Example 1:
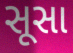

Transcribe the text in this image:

સૂસા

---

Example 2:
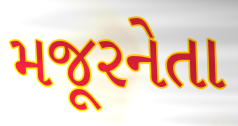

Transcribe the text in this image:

મજૂરનેતા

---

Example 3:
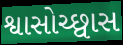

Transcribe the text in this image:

શ્વાસોચ્છ્વાસ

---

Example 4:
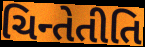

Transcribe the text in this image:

ચિન્તેતીતિ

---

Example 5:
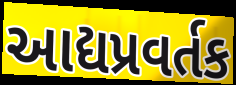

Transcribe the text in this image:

આદ્યપ્રવર્તક